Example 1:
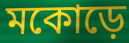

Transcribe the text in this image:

মকোড়ে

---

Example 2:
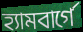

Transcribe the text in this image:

হ্যামবার্গে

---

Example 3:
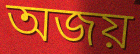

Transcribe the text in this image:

অজয়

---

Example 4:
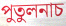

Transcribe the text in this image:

পুতুলনাচ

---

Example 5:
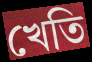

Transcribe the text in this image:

খেতি